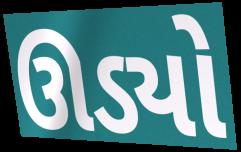
ઊડ્યો